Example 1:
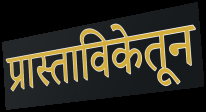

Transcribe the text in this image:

प्रास्ताविकेतून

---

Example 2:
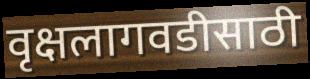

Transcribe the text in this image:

वृक्षलागवडीसाठी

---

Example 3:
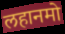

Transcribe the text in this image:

लहानमो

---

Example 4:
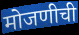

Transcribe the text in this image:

मोजणीची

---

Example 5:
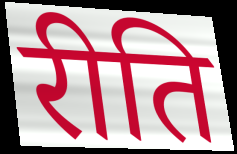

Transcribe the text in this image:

रीति